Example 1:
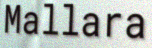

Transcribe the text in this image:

Mallara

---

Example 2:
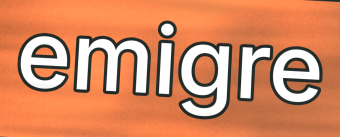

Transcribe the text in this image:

emigre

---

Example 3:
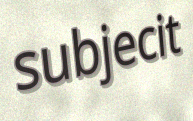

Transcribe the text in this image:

subjecit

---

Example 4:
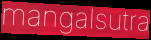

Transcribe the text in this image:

mangalsutra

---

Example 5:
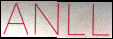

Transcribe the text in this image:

ANLL